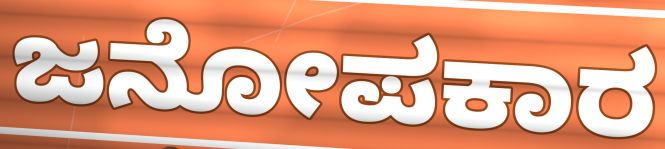
ಜನೋಪಕಾರ